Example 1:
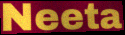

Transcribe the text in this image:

Neeta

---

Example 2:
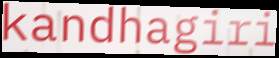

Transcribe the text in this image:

kandhagiri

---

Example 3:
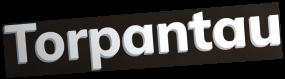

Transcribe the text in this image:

Torpantau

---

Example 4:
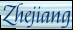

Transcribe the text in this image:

Zhejiang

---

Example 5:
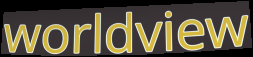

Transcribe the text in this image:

worldview